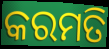
କରମତି